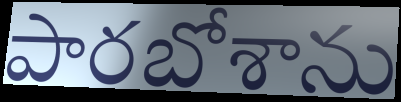
పారబోశాను